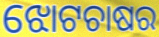
ଝୋଟଚାଷର